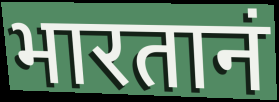
भारतानं